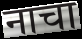
नाचा